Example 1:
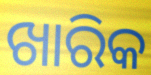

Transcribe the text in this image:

ଖାରିକ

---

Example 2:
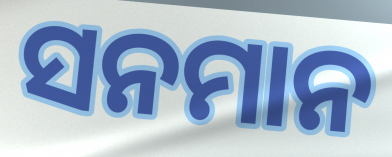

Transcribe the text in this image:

ସନମାନ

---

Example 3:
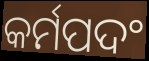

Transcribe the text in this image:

କର୍ମପଦଂ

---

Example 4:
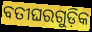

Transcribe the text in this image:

ବତୀଘରଗୁଡ଼ିକ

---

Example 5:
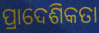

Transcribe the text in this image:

ପ୍ରାଦେଶିକତା